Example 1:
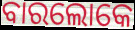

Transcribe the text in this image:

ବାରଲୋକେ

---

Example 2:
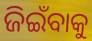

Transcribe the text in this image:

ଜିଇଁବାକୁ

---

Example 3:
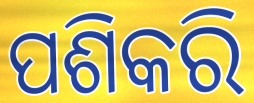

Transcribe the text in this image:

ପଶିକରି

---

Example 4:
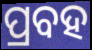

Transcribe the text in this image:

ପ୍ରବହ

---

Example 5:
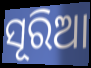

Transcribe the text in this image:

ସୂରିଆ